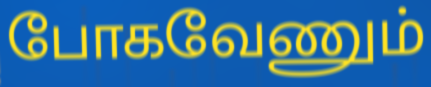
போகவேணும்